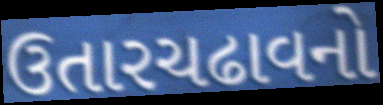
ઉતારચઢાવનો